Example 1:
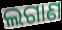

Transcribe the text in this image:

ଲଗାଣ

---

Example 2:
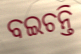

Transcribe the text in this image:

ବଇଚନ୍ତି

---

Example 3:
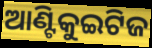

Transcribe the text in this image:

ଆଣ୍ଟିକୁଇଟିଜ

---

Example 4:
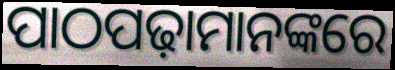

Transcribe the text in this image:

ପାଠପଢ଼ାମାନଙ୍କରେ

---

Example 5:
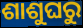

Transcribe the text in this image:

ଶାଶୁଘରୁ